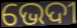
ଭେଦୀ